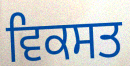
ਵਿਕਸਤ